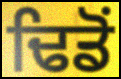
ਢਿਡੋਂ